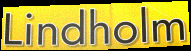
Lindholm